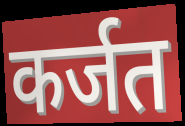
कर्जत